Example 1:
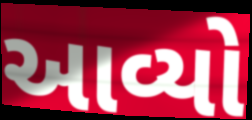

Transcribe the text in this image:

આવ્યો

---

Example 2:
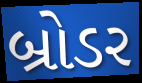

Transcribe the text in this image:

બ્રોડર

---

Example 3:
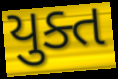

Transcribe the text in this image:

યુક્ત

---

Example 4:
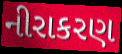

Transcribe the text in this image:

નીરાકરણ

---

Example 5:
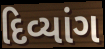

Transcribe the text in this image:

દિવ્યાંગ